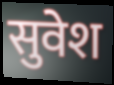
सुवेश